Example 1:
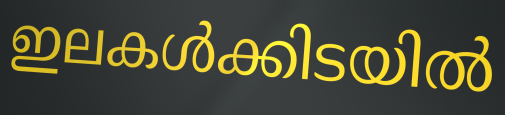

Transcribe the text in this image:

ഇലകൾക്കിടയിൽ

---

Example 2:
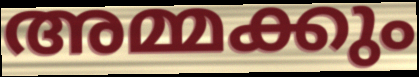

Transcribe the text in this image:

അമ്മക്കും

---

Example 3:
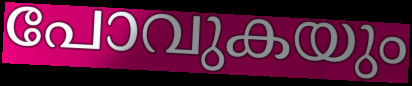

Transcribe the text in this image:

പോവുകയും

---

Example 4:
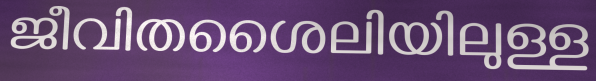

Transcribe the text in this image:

ജീവിതശൈലിയിലുള്ള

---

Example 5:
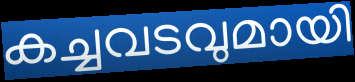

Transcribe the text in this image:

കച്ചവടവുമായി